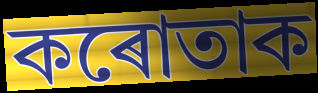
কৰোতাক